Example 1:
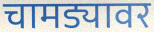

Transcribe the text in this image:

चामड्यावर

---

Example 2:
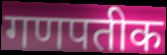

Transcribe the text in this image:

गणपतीक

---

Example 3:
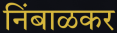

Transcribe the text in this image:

निंबाळकर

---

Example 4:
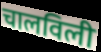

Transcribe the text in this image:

चालविली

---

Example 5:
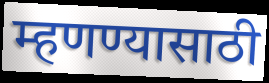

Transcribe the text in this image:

म्हणण्यासाठी